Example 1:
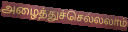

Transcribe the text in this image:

அழைத்துச்செல்லலாம்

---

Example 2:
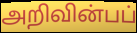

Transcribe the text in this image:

அறிவின்பப்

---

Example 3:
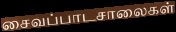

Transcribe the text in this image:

சைவப்பாடசாலைகள்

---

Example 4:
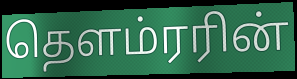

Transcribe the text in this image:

தௌம்ரரின்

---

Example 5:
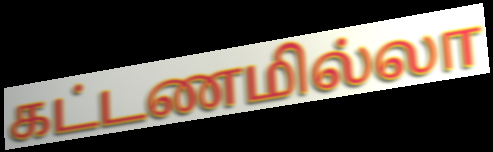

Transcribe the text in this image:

கட்டணமில்லா